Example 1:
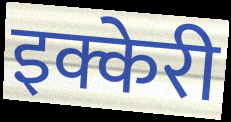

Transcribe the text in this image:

इक्केरी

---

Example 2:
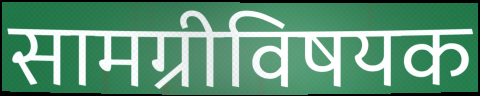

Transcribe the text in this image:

सामग्रीविषयक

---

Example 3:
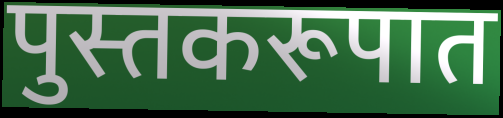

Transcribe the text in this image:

पुस्तकरूपात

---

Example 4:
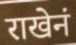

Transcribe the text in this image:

राखेनं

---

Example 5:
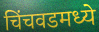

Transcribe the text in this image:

चिंचवडमध्ये